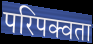
परिपक्‍वता